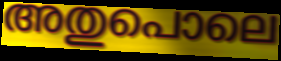
അതുപൊലെ